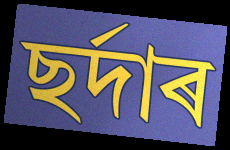
ছৰ্দাৰ